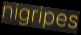
nigripes